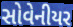
સોવેનીયર